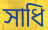
সাধি